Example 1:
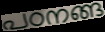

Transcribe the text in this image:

പഠനങ്ങ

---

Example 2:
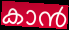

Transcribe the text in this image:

കാൻ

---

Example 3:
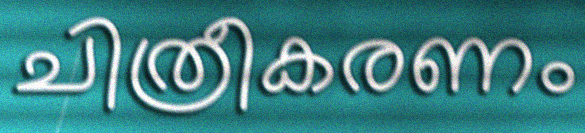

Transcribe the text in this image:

ചിത്രീകരണം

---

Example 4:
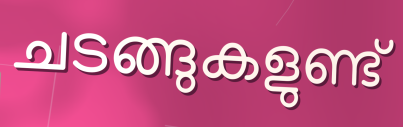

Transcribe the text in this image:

ചടങ്ങുകളുണ്ട്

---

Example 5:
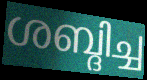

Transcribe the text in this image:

ശബ്ദിച്ച